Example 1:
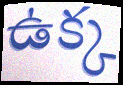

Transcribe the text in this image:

ఉక్క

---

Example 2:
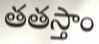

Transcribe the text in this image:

తతస్తాం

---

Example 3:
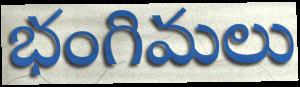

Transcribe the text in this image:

భంగిమలు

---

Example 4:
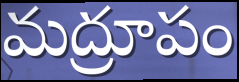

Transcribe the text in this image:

మద్రూపం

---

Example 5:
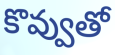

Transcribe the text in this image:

కొవ్వుతో